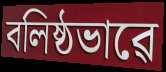
বলিষ্ঠভাৱে